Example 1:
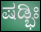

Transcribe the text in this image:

ಷಡ್ಭಿಃ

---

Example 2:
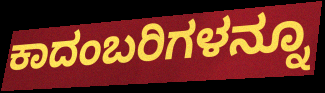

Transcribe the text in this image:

ಕಾದಂಬರಿಗಳನ್ನೂ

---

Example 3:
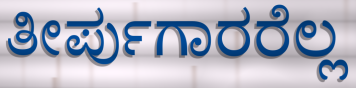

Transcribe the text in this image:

ತೀರ್ಪುಗಾರರೆಲ್ಲ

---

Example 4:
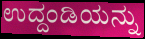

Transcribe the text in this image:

ಉದ್ದಂಡಿಯನ್ನು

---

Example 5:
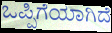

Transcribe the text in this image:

ಒಪ್ಪಿಗೆಯಾಗಿದೆ